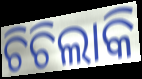
ଚିଚିଲାକି